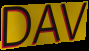
DAV